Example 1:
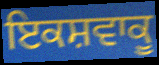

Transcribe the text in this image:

ਇਕਸ਼ਵਾਕੂ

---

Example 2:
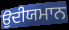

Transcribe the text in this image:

ਉਦੀਯਮਾਨ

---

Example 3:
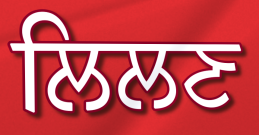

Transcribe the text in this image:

ਲਿਲਣ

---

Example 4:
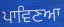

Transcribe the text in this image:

ਪਾਵਿਣਆ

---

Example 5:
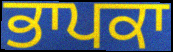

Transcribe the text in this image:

ਭਾਪਕਾ